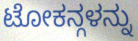
ಟೋಕನ್ಗಳನ್ನು